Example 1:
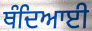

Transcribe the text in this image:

ਥੰਦਿਆਈ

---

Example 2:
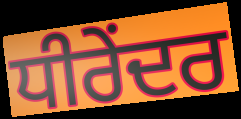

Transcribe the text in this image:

ਧੀਰੇਂਦਰ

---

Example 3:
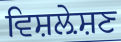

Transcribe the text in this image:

ਵਿਸ਼ਲ਼ੇਸ਼ਣ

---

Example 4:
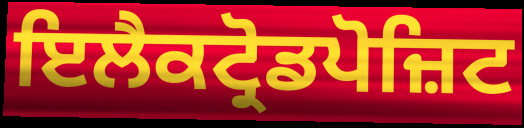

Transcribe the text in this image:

ਇਲੈਕਟ੍ਰੋਡਪੋਜ਼ਿਟ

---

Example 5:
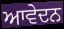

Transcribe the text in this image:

ਆਵੇਦਨ